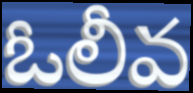
ఓలీవ